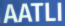
AATLI